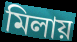
মিলায়